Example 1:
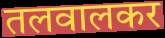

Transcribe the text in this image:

तलवालकर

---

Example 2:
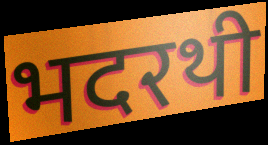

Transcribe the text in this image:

भदरथी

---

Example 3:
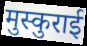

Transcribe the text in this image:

मुस्कुराई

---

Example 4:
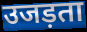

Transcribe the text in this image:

उजड़ता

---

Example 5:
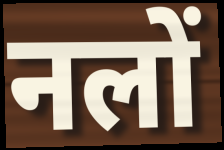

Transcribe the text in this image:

नलों